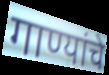
गाण्यांचे